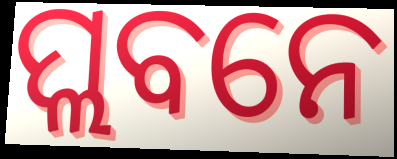
ପ୍ଲବନେ